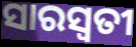
ସାରସ୍ୱତୀ